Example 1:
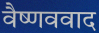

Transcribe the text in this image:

वैष्णववाद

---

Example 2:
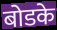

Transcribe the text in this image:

बोडके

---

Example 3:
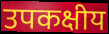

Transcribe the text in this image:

उपकक्षीय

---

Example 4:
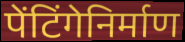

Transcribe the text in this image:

पेंटिंगेनिर्माण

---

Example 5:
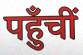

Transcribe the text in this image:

पहुँचीं